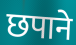
छपाने